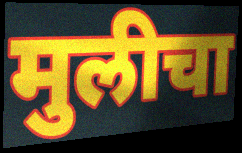
मुलीचा